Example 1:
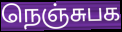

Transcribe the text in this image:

நெஞ்சுபக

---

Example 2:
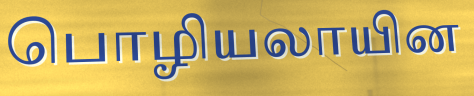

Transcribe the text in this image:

பொழியலாயின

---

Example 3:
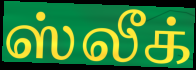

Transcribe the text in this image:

ஸ்லீக்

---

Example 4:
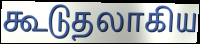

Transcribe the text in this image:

கூடுதலாகிய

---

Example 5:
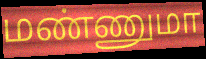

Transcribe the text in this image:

மண்ணுமா